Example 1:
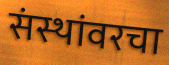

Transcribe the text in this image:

संस्थांवरचा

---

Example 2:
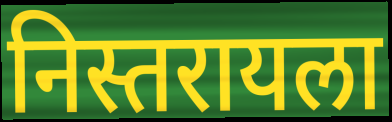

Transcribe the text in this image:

निस्तरायला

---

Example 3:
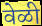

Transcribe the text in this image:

वेळी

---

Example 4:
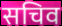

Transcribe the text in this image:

सचिव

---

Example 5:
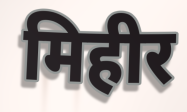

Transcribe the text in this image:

मिहीर